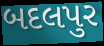
બદલપુર